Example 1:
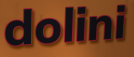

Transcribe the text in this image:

dolini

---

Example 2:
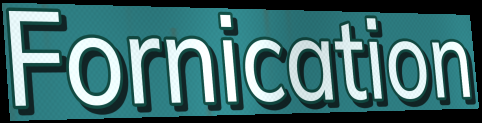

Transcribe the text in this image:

Fornication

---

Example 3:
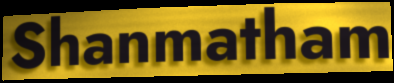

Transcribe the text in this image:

Shanmatham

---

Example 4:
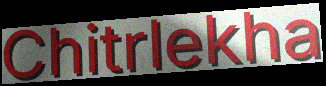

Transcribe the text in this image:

Chitrlekha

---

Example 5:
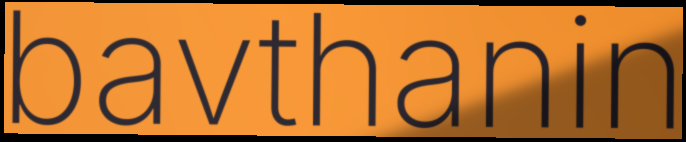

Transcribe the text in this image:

bavthanin